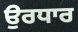
ਉਰਧਾਰ